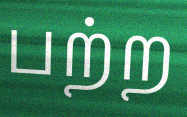
பற்ற